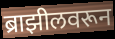
ब्राझीलवरून